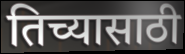
तिच्यासाठी